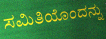
ಸಮಿತಿಯೊಂದನ್ನು